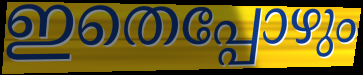
ഇതെപ്പോഴും